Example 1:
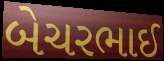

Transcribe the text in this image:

બેચરભાઈ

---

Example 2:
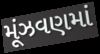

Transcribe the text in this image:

મૂંઝવણમાં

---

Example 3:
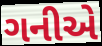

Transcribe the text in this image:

ગનીએ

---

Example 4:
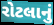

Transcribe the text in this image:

રોટલાનું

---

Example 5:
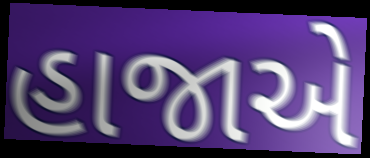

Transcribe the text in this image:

હાજાએ